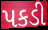
પકડી